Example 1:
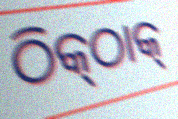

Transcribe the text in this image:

ଠିକ୍‌ଠାକ୍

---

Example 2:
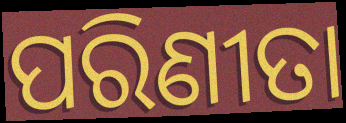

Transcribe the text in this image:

ପରିଣୀତା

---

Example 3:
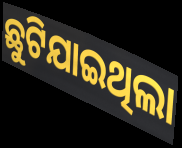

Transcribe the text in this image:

ଛୁଟିଯାଇଥିଲା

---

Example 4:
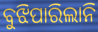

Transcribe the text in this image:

ବୁଝିପାରିଲାନି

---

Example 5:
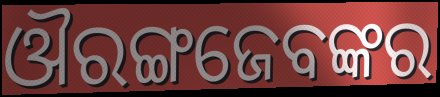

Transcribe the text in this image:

ଔରଙ୍ଗଜେବଙ୍କର